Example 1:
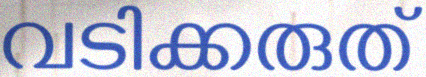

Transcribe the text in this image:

വടിക്കരുത്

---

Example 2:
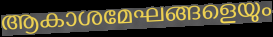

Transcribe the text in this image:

ആകാശമേഘങ്ങളെയും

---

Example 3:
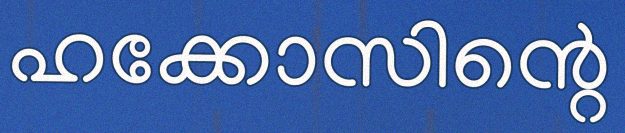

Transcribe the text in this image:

ഹക്കോസിന്റെ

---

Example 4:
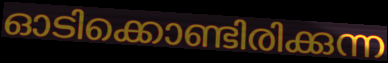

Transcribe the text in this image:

ഓടിക്കൊണ്ടിരിക്കുന്ന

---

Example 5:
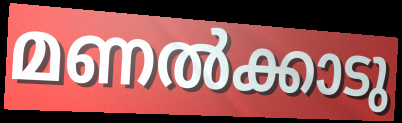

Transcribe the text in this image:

മണൽക്കാടു